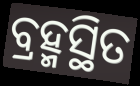
ବ୍ରହ୍ମସ୍ଥିତ